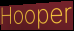
Hooper